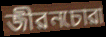
জীৱনচোৱা